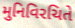
મુનિવિરચિતે